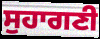
ਸੁਹਾਗਣੀ